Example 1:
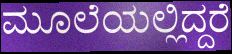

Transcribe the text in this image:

ಮೂಲೆಯಲ್ಲಿದ್ದರೆ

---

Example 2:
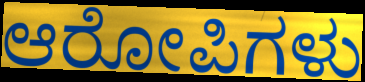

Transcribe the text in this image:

ಆರೋಪಿಗಳು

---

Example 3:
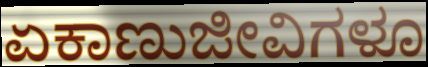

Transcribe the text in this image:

ಏಕಾಣುಜೀವಿಗಳೂ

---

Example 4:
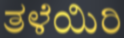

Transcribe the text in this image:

ತಳೆಯಿರಿ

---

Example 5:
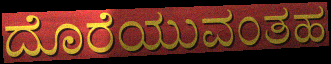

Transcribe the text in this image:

ದೊರೆಯುವಂತಹ